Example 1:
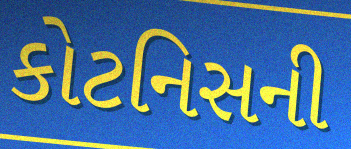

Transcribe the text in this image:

કોટનિસની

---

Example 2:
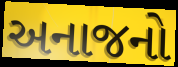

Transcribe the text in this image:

અનાજનો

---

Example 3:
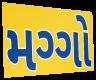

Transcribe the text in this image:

મગ્ગો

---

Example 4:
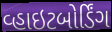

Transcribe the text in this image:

વ્હાઇટબોર્ડિંગ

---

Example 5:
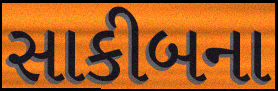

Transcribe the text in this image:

સાકીબના